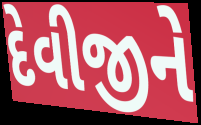
દેવીજીને